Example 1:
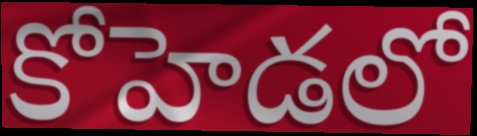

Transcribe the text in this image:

కోహెడలో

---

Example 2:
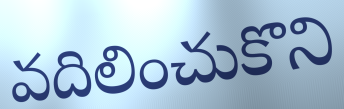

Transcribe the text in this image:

వదిలించుకొని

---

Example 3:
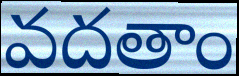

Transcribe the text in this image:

వదతాం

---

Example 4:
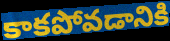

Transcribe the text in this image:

కాకపోవడానికి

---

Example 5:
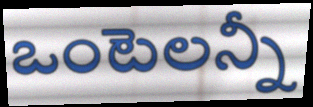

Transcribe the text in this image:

ఒంటెలన్నీ